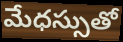
మేధస్సుతో